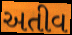
અતીવ